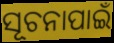
ସୂଚନାପାଇଁ